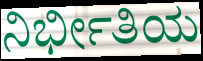
ನಿರ್ಭೀತಿಯ